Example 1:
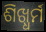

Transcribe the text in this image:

ଶିଖ୍ଧର୍ମ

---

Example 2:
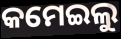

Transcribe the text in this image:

କମେଇଲୁ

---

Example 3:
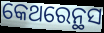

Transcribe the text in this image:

କେଥରେନ୍ଥସ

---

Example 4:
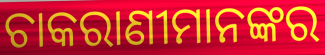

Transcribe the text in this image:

ଚାକରାଣୀମାନଙ୍କର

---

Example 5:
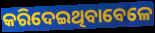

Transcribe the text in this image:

କରିଦେଇଥିବାବେଳେ